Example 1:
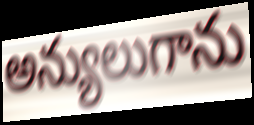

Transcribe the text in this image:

అన్యులుగాను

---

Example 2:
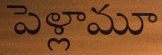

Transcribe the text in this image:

పెళ్లామూ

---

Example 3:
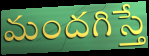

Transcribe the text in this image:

మందగిస్తే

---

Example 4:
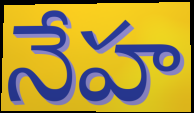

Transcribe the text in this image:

నేహ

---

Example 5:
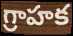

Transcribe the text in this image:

గ్రాహక